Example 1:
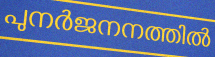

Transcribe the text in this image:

പുനർജനനത്തിൽ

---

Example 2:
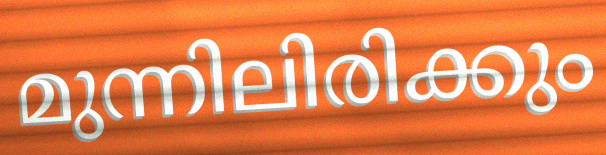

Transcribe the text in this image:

മുന്നിലിരിക്കും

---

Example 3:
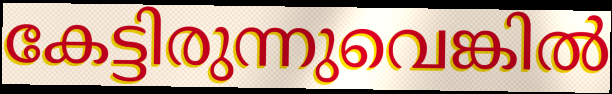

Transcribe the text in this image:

കേട്ടിരുന്നുവെങ്കിൽ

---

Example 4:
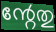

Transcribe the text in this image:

ന്റേതു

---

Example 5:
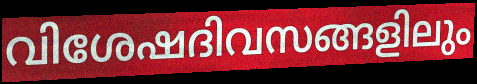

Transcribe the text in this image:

വിശേഷദിവസങ്ങളിലും